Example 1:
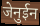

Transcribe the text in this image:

जेनुईन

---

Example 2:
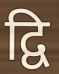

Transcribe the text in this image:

द्वि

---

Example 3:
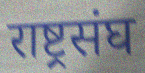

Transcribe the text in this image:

राष्ट्रसंघ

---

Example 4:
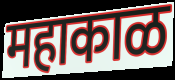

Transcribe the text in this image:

महाकाळ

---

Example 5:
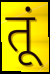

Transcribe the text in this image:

तूं